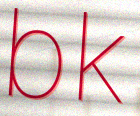
bk